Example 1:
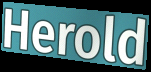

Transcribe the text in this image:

Herold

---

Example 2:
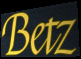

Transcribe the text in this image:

Betz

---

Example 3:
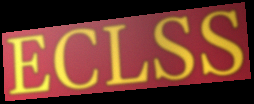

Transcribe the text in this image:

ECLSS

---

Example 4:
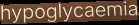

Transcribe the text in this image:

hypoglycaemia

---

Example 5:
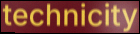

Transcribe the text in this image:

technicity